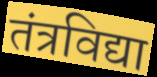
तंत्रविद्या